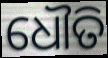
ଧୌତି